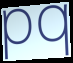
pq